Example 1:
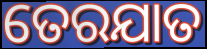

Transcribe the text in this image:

ତେରଯାତ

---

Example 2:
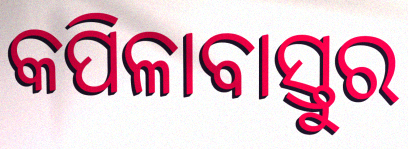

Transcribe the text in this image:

କପିଳାବାସ୍ତୁର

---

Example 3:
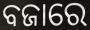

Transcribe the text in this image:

ବଜାରେ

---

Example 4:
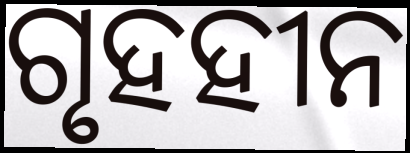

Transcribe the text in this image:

ଗୃହହୀନ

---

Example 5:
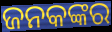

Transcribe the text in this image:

ଜନକଙ୍କର